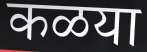
कळया